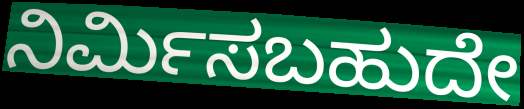
ನಿರ್ಮಿಸಬಹುದೇ